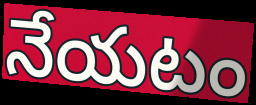
నేయటం